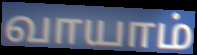
வாயாம்